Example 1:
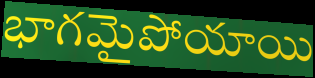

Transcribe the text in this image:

భాగమైపోయాయి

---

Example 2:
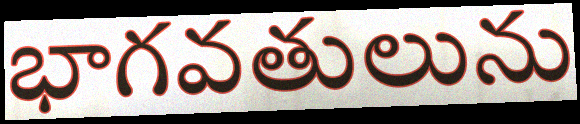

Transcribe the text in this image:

భాగవతులును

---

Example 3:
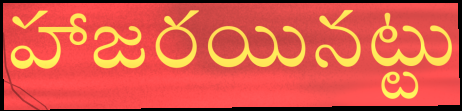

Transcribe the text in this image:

హాజరయినట్టు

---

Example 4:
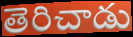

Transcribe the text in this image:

తెరిచాడు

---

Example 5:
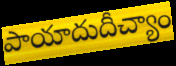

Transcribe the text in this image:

పాయాదుదీచ్యాం